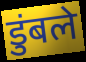
डुंबले